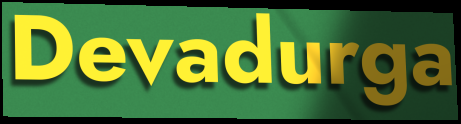
Devadurga